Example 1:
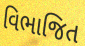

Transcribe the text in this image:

વિભાજિત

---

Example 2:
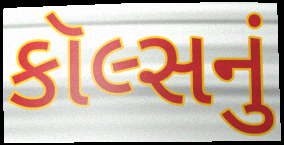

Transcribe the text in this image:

કૉલ્સનું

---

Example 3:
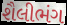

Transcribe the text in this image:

શૈલીભંગ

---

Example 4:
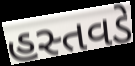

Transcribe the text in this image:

હસ્તવડે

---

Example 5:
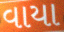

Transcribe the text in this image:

વાયા